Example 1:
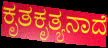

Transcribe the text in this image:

ಕೃತಕೃತ್ಯನಾದೆ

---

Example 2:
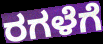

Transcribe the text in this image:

ರಗಳೆಗೆ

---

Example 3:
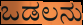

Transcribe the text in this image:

ಒಡಲನು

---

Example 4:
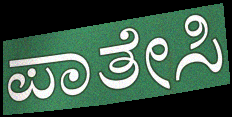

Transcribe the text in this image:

ಪಾತೇಸಿ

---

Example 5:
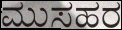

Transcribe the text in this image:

ಮುಸಹರ